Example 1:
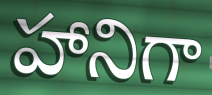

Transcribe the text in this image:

హానిగా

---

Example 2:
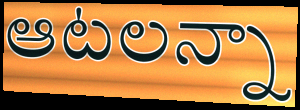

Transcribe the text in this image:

ఆటలన్నా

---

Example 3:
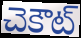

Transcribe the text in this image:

చెకౌట్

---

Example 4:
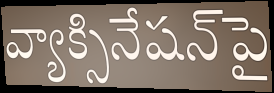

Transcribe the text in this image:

వ్యాక్సినేషన్‌పై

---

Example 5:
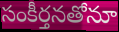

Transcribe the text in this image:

సంకీర్తనతోనూ